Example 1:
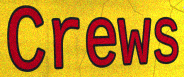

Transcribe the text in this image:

Crews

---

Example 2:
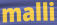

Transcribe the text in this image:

malli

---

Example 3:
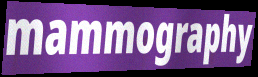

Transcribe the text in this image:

mammography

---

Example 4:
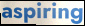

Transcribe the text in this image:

aspiring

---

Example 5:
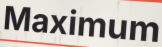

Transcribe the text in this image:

Maximum